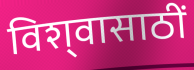
विश्वासाठीं